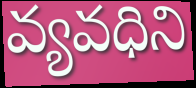
వ్యవధిని